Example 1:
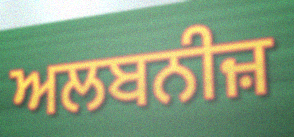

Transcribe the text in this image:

ਅਲਬਨੀਜ਼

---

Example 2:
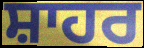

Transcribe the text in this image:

ਸ਼ਾਹਰ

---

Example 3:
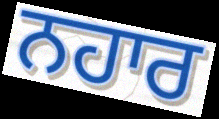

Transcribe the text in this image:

ਨਹਾਰ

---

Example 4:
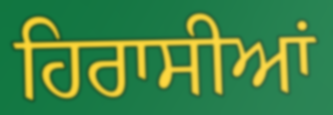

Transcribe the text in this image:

ਹਿਰਾਸੀਆਂ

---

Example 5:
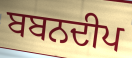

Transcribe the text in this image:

ਬਬਨਦੀਪ